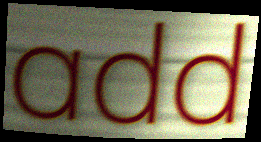
add